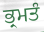
ਭ੍ਰਮਤੰ